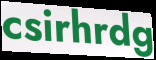
csirhrdg